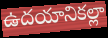
ఉదయానికల్లా